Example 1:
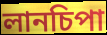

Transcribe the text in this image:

লানচিপা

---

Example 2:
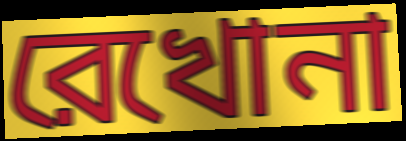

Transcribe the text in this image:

রেখোনা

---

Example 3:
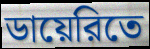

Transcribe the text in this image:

ডায়েরিতে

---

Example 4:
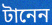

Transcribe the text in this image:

টানেন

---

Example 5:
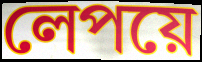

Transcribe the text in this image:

লেপয়ে